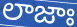
లాజాః